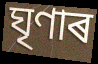
ঘৃণাৰ